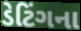
ડેટિંગના